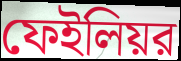
ফেইলিয়র